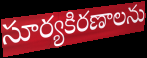
సూర్యకిరణాలను